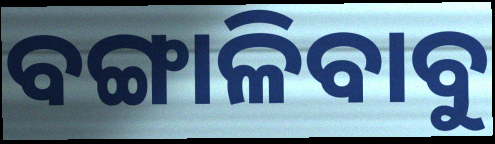
ବଙ୍ଗାଳିବାବୁ